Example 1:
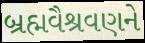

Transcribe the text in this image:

બ્રહ્મવૈશ્રવણને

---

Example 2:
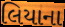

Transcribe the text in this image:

લિયાના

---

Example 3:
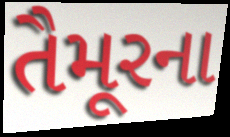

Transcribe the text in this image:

તૈમૂરના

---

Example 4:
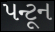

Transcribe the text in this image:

પન્ટૂન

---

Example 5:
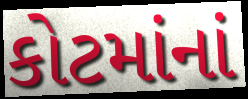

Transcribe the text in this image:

કોટમાંનાં